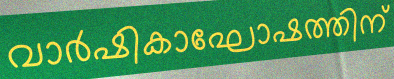
വാർഷികാഘോഷത്തിന്